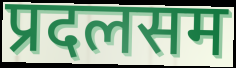
प्रदलसम